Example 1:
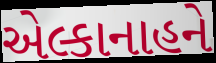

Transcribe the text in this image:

એલ્કાનાહને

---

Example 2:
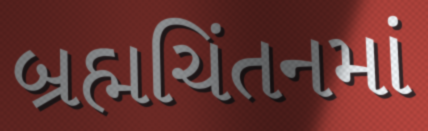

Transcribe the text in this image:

બ્રહ્મચિંતનમાં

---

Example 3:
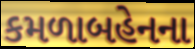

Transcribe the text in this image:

કમળાબહેનના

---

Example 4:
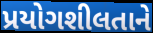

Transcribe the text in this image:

પ્રયોગશીલતાને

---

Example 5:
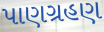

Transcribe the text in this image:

પાણગ્રહણ